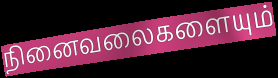
நினைவலைகளையும்